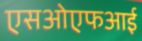
एसओएफआई